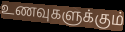
உணவுகளுக்கும்